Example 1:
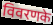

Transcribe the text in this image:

विवरणके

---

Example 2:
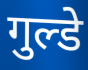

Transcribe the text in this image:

गुल्डे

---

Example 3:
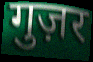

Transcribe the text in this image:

गुज़र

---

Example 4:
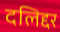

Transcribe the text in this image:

दलिद्दर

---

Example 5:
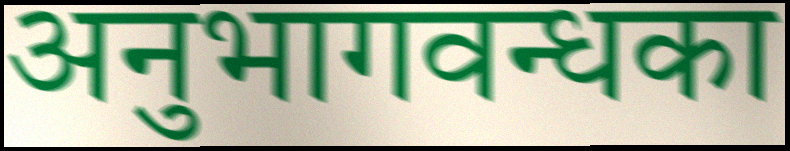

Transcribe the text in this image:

अनुभागवन्धका